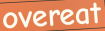
overeat